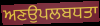
ਅਣਉਪਲਬਧਤਾ